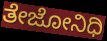
ತೇಜೋನಿಧಿ